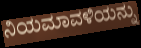
ನಿಯಮಾವಳಿಯನ್ನು